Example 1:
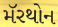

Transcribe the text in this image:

મૅરથોન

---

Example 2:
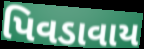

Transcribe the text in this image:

પિવડાવાય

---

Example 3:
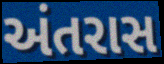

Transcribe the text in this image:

અંતરાસ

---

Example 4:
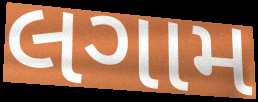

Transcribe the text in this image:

લગામ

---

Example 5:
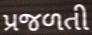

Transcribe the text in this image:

પ્રજળતી